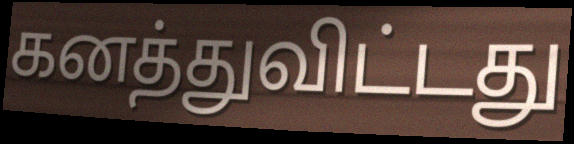
கனத்துவிட்டது